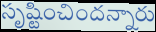
సృష్టించిందన్నారు